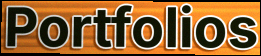
Portfolios